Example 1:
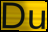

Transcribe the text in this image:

Du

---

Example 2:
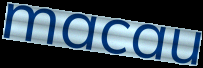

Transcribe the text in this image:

macau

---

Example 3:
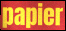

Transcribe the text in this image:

papier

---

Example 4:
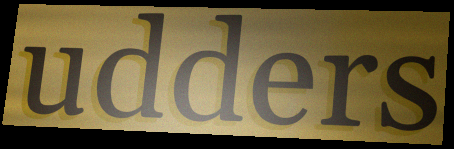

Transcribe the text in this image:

udders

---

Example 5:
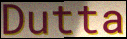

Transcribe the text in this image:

Dutta